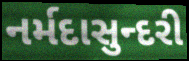
નર્મદાસુન્દરી